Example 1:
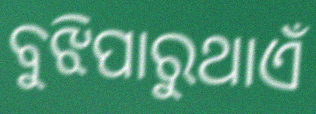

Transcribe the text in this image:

ବୁଝିପାରୁଥାଏଁ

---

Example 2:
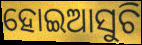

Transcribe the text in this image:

ହୋଇଆସୁଚି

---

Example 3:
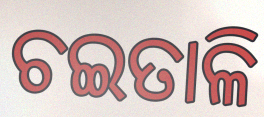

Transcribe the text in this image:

ଚଇତାଳି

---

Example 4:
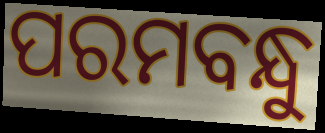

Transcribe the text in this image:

ପରମବନ୍ଧୁ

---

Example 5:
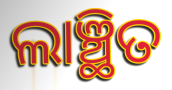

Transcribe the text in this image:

ଲାଞ୍ଛିତ